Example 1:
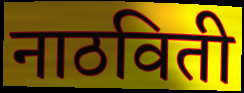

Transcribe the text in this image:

नाठविती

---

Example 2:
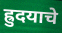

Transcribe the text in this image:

ह्रुदयाचे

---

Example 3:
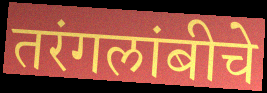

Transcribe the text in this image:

तरंगलांबीचे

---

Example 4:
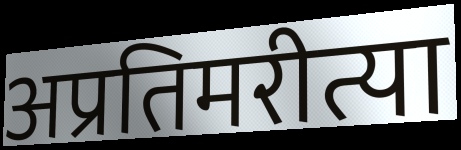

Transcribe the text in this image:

अप्रतिमरीत्या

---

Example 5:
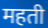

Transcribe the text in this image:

महती